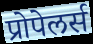
प्रोपेलर्स